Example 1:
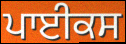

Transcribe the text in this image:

ਪਾਈਕਸ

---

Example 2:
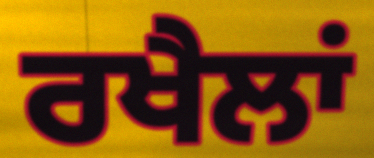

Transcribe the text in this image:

ਰਖੈਲਾਂ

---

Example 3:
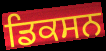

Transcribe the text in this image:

ਡਿਕਸਨ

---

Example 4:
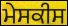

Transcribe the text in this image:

ਮੇਸਕੀਸ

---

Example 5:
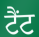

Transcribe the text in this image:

ਟੈਂਟ